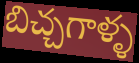
బిచ్చగాళ్ళ